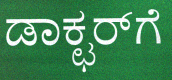
ಡಾಕ್ಟರ್‌ಗೆ